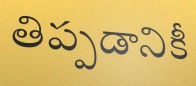
తిప్పడానికీ